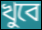
খুবে